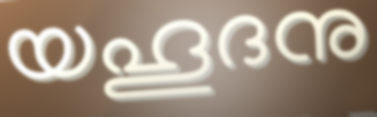
യഹൂദനു